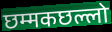
छम्मकछल्लो